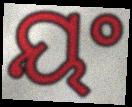
ୟଂ